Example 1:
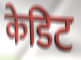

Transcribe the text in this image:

केडिट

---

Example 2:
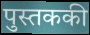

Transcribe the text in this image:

पुस्तककी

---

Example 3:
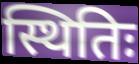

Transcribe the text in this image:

स्थितिः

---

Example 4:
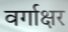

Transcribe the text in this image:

वर्गाक्षर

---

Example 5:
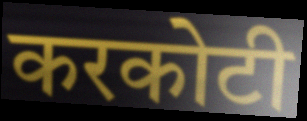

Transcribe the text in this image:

करकोटी